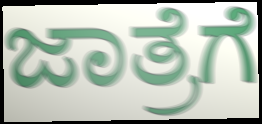
ಜಾತ್ರೆಗೆ